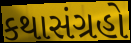
કથાસંગ્રહો